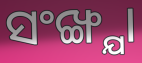
ସଂଙ୍ଖ୍ଯା